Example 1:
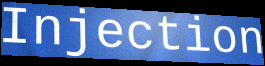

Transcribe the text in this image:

Injection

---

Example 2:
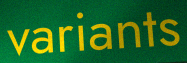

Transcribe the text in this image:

variants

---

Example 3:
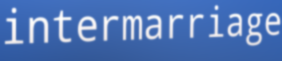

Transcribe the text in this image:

intermarriage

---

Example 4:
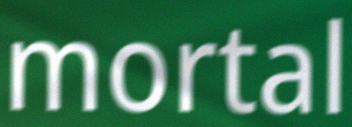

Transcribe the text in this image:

mortal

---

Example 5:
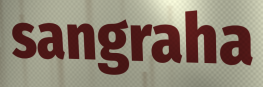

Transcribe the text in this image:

sangraha